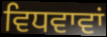
ਵਿਧਵਾਵਾਂ